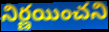
నిర్ణయించని